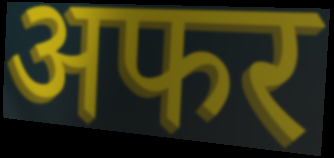
अफर